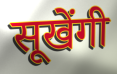
सूखेंगी